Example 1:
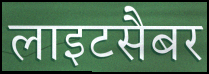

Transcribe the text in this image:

लाइटसैबर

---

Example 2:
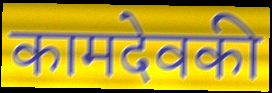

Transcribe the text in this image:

कामदेवकी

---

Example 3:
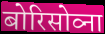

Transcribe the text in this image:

बोरिसोव्ना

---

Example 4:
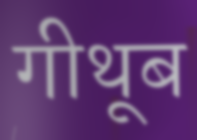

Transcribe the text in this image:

गीथूब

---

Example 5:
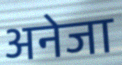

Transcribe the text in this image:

अनेजा